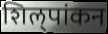
शिल्पांकन